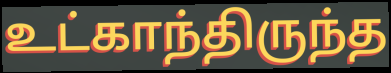
உட்காந்திருந்த